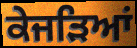
ਕੇਜੜਿਆਂ